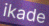
ikade